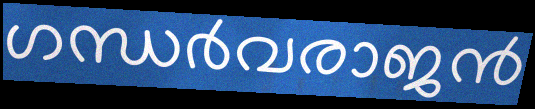
ഗന്ധർവരാജൻ